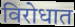
विरोधात